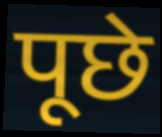
पूछे